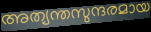
അത്യന്തസുന്ദരമായ